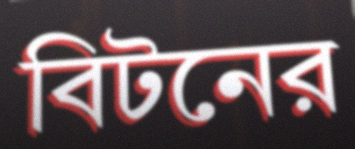
বিটনের